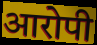
आरोपी